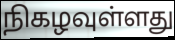
நிகழவுள்ளது